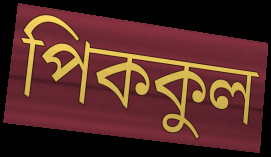
পিককুল